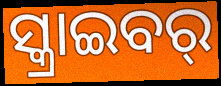
ସ୍କ୍ରାଇବର୍